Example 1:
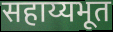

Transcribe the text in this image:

सहाय्यभूत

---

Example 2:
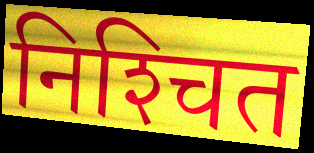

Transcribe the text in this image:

निश्चित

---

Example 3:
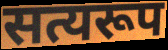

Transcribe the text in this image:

सत्यरूप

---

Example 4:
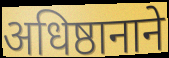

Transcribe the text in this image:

अधिष्ठानाने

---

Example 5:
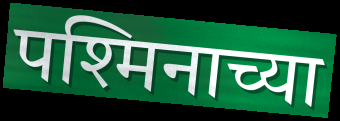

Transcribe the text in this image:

पश्मिनाच्या